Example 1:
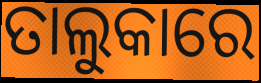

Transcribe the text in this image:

ତାଲୁକାରେ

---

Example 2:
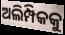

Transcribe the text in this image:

ଅଲିମ୍ପିକକୁ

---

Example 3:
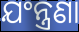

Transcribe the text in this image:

ଯଂନ୍ତ୍ରଣା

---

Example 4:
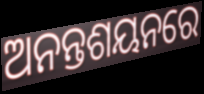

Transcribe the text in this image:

ଅନନ୍ତଶୟନରେ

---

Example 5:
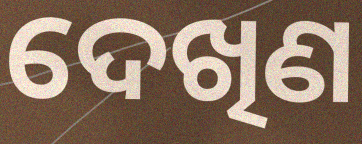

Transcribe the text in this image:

ଦେଖିଣ